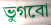
ভুগবো